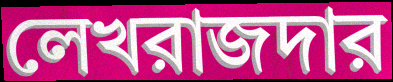
লেখরাজদার